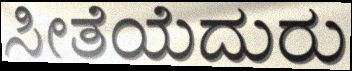
ಸೀತೆಯೆದುರು